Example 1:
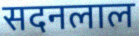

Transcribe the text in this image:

सदनलाल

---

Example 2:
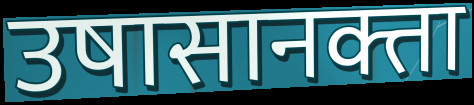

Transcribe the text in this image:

उषासानक्ता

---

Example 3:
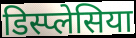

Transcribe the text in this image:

डिस्प्लेसिया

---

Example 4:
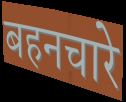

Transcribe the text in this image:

बहनचारे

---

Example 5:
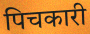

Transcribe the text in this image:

पिचकारी